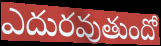
ఎదురవుతుందో